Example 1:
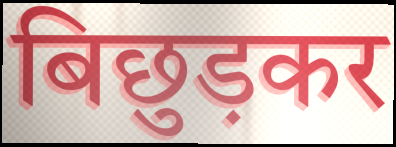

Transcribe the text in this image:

बिछुड़कर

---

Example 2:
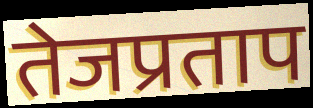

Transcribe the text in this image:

तेजप्रताप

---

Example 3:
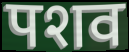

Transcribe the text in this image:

पशव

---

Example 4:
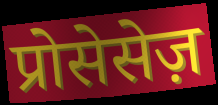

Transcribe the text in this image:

प्रोसेसेज़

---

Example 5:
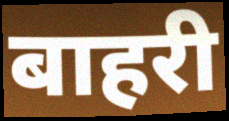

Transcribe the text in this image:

बाहरी